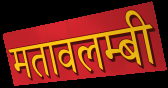
मतावलम्बी